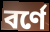
বর্ণে